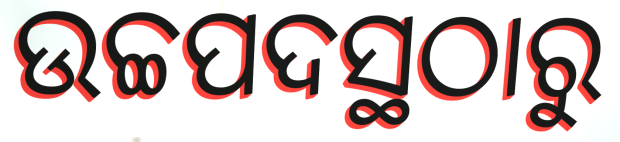
ଉଚ୍ଚପଦସ୍ଥଠାରୁ